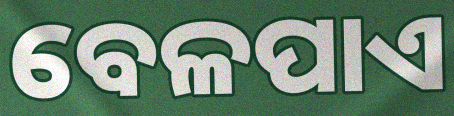
ବେଳପାଏ